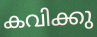
കവിക്കു